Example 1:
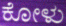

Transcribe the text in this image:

ಕೋಳು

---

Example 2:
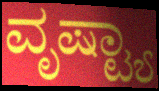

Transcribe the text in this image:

ವೃಷ್ಟ್ಯಾ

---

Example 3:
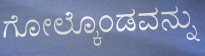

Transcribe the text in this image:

ಗೋಲ್ಕೊಂಡವನ್ನು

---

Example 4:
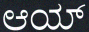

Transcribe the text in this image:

ಆಯ್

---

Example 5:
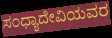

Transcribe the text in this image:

ಸಂಧ್ಯಾದೇವಿಯವರ